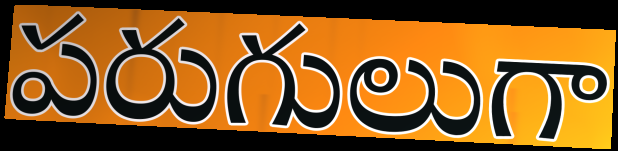
పరుగులుగా